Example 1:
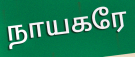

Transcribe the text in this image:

நாயகரே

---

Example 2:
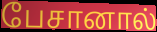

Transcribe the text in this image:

பேசானால்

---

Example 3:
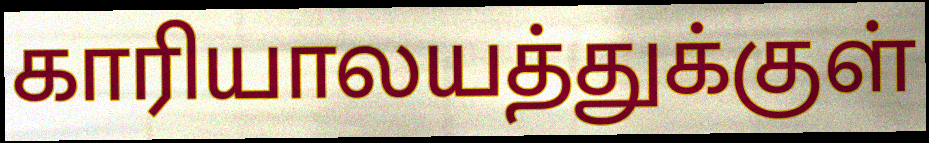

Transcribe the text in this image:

காரியாலயத்துக்குள்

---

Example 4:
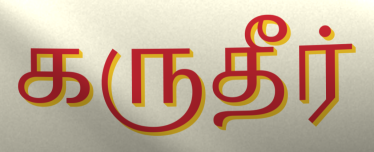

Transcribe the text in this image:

கருதீர்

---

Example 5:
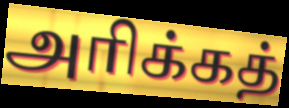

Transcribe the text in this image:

அரிக்கத்